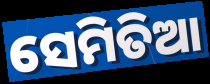
ସେମିତିଆ